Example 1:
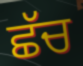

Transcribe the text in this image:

ਛੱਚ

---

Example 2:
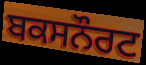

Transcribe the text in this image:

ਬਕਸਨੌਰਟ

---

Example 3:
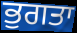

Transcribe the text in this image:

ਭੁਗਤਾ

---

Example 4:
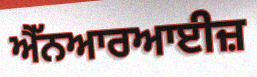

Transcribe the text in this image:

ਐੱਨਆਰਆਈਜ਼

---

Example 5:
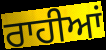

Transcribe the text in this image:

ਰਾਹੀਆਂ